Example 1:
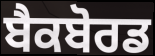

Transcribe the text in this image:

ਬੈਕਬੋਰਡ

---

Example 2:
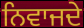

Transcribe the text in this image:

ਨਿਵਾਜਦੇ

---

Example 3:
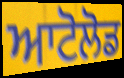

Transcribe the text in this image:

ਆਟੋਲੋਡ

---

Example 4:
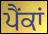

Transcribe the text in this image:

ਪੈਂਕਾਂ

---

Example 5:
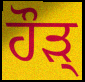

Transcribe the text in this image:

ਹੌੜ੍